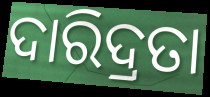
ଦାରିଦ୍ରତା